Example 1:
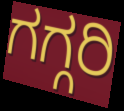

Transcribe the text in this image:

ಗಗ್ಗರಿ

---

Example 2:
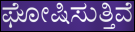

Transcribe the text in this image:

ಘೋಷಿಸುತ್ತಿವೆ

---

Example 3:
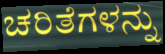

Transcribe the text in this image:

ಚರಿತೆಗಳನ್ನು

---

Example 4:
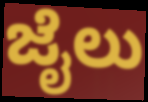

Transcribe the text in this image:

ಜೈಲು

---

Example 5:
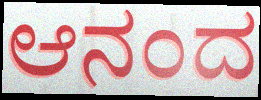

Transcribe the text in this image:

ಆನಂದ